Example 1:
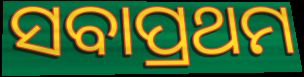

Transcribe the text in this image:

ସବାପ୍ରଥମ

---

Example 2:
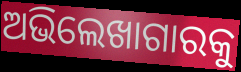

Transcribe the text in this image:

ଅଭିଲେଖାଗାରକୁ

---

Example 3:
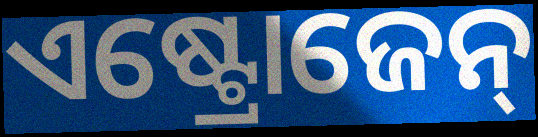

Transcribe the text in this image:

ଏଷ୍ଟ୍ରୋଜେନ୍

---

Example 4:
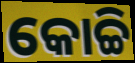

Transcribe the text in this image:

କୋଚ୍ଚି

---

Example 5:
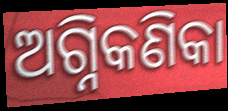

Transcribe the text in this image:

ଅଗ୍ନିକଣିକା